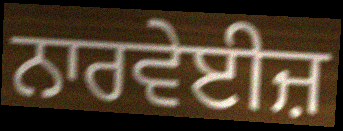
ਨਾਰਵੇਈਜ਼